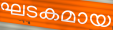
ഘടകമായ